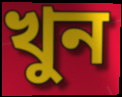
খুন